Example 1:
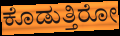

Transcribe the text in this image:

ಕೊಡುತ್ತಿರೋ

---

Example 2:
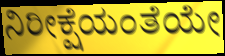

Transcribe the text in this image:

ನಿರೀಕ್ಷೆಯಂತೆಯೇ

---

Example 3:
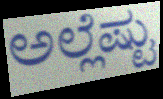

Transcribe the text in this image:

ಅಲ್ಲೆಷ್ಟು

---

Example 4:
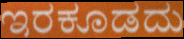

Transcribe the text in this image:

ಇರಕೂಡದು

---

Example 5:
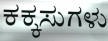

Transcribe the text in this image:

ಕಕ್ಕಸುಗಳು